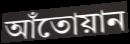
আঁতোয়ান